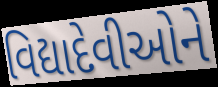
વિદ્યાદેવીઓને